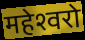
महेश्वरो